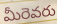
మీరెవరు